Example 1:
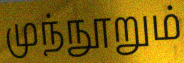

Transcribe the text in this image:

முந்நூறும்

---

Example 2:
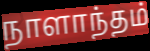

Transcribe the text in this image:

நாளாந்தம்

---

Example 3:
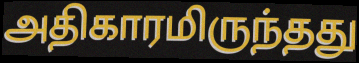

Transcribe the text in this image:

அதிகாரமிருந்தது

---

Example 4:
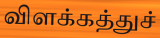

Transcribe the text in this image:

விளக்கத்துச்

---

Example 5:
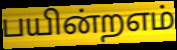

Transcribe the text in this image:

பயின்றஎம்